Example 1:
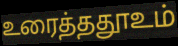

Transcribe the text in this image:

உரைத்ததூஉம்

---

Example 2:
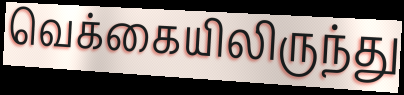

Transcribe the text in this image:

வெக்கையிலிருந்து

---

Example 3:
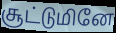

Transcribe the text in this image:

சூட்டுமினே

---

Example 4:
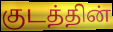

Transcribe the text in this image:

குடத்தின்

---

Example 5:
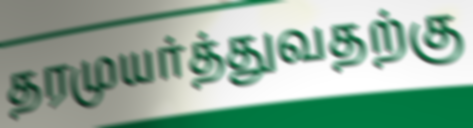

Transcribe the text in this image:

தரமுயர்த்துவதற்கு